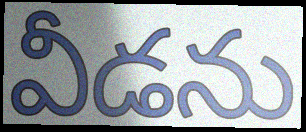
వీడను